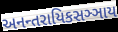
અનન્તરાયિકસઞ્ઞાય